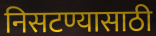
निसटण्यासाठी